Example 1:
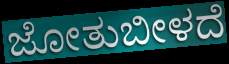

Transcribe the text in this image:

ಜೋತುಬೀಳದೆ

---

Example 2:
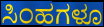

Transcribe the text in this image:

ಸಿಂಹಗಳೂ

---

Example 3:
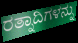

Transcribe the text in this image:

ರತ್ನಾದಿಗಳನ್ನು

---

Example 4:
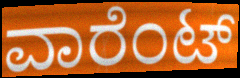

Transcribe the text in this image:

ವಾರೆಂಟ್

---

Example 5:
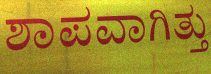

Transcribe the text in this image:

ಶಾಪವಾಗಿತ್ತು